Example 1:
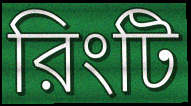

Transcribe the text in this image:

রিংটি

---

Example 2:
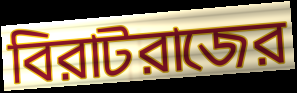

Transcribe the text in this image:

বিরাটরাজের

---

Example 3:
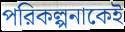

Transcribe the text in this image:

পরিকল্পনাকেই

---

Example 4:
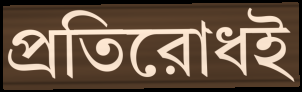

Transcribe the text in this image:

প্রতিরোধই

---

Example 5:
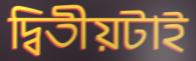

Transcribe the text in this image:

দ্বিতীয়টাই